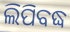
ଲିପିବଦ୍ଧ